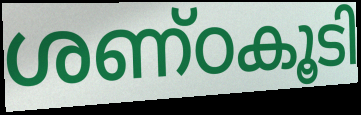
ശണ്ഠകൂടി